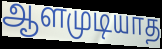
ஆளமுடியாத